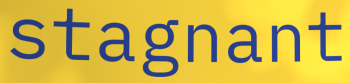
stagnant